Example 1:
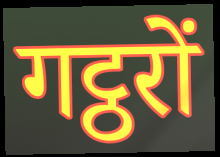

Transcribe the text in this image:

गट्ठरों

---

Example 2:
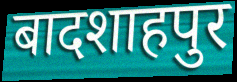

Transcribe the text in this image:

बादशाहपुर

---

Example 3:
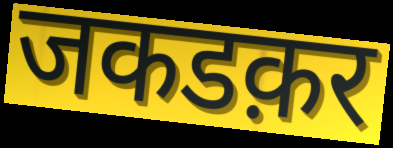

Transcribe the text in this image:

जकडक़र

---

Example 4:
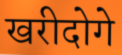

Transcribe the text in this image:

खरीदोगे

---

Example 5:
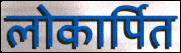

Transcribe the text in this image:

लोकार्पित